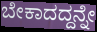
ಬೇಕಾದದ್ದನ್ನೇ